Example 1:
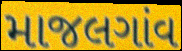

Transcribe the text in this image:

માજલગાંવ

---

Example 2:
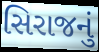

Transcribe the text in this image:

સિરાજનું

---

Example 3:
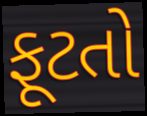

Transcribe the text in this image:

ફૂટતો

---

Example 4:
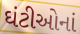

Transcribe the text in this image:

ઘંટીઓનાં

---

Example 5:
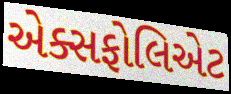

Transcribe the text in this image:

એક્સફોલિએટ